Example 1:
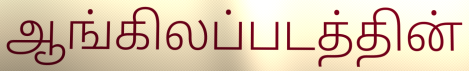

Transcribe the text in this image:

ஆங்கிலப்படத்தின்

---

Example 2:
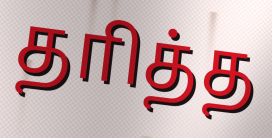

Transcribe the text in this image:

தரித்த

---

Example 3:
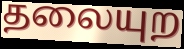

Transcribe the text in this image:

தலையுற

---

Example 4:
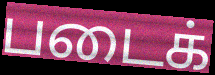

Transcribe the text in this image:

படைக்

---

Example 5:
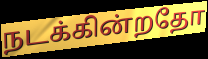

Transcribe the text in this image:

நடக்கின்றதோ